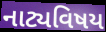
નાટ્યવિષય